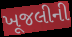
ખૂજલીની